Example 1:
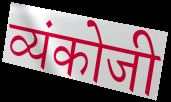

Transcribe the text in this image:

व्यंकोजी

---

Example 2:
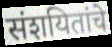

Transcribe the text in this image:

संशयितांचे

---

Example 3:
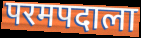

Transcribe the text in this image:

परमपदाला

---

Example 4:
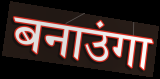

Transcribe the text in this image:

बनाउंगा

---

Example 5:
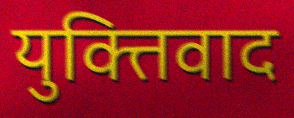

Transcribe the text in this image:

युक्तिवाद